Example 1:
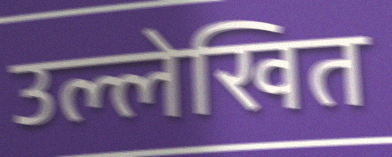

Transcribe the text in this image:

उल्लेखित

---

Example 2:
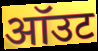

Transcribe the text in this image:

ऑउट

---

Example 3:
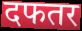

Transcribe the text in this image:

दफतर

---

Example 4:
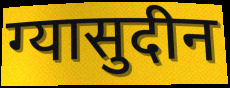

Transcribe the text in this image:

ग्यासुदीन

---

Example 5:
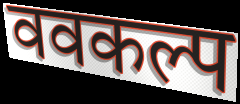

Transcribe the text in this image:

ववकल्प